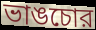
ভাঙচোর